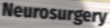
Neurosurgery